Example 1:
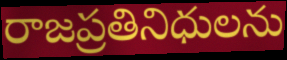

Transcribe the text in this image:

రాజప్రతినిధులను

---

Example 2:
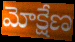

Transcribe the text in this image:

మోక్షేణ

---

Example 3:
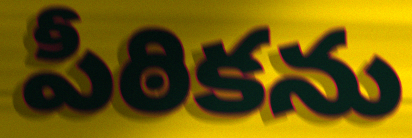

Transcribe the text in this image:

పీఠికను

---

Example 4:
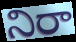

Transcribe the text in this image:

నిరా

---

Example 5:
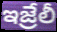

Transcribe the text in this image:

ఇజ్రేలీ